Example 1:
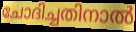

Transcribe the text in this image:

ചോദിച്ചതിനാൽ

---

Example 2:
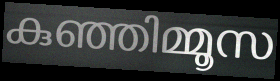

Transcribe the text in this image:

കുഞ്ഞിമ്മൂസ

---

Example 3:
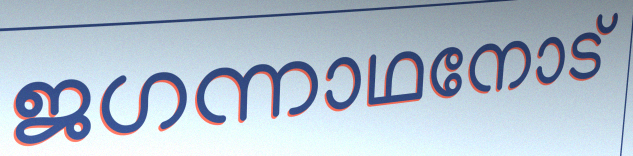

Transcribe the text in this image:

ജഗന്നാഥനോട്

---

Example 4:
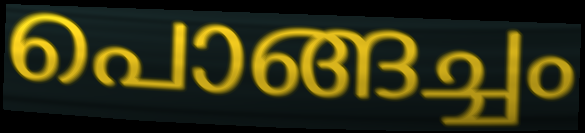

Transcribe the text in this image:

പൊങ്ങച്ചം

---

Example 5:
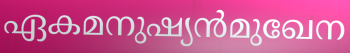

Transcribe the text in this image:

ഏകമനുഷ്യൻമുഖേന